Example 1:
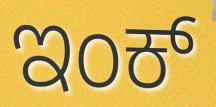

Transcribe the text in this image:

ಇಂಕ್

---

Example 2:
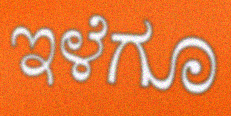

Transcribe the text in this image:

ಇಳೆಗೂ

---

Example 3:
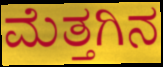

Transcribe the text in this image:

ಮೆತ್ತಗಿನ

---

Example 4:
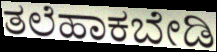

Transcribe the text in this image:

ತಲೆಹಾಕಬೇಡಿ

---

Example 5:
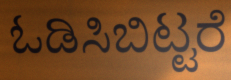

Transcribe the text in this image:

ಓಡಿಸಿಬಿಟ್ಟರೆ